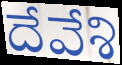
దేవేశి